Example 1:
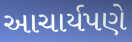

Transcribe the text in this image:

આચાર્યપણે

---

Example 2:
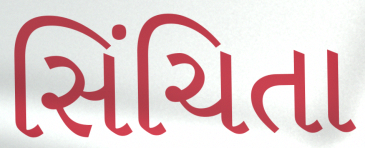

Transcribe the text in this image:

સિંચિતા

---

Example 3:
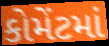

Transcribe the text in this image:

કોમેંટમાં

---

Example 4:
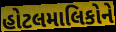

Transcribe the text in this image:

હોટલમાલિકોને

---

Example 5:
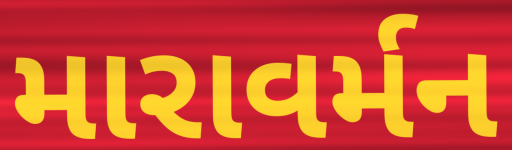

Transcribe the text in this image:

મારાવર્મન